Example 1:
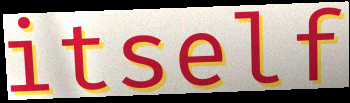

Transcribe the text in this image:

itself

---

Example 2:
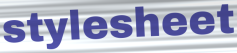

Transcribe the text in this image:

stylesheet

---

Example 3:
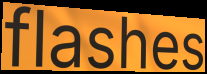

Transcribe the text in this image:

flashes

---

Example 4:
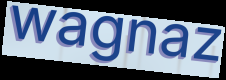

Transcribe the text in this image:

wagnaz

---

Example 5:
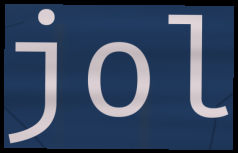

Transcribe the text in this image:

jol